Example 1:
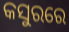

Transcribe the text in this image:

କସୁରରେ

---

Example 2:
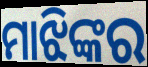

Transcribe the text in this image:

ମାଝିଙ୍କର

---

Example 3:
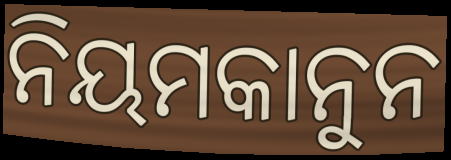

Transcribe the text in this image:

ନିୟମକାନୁନ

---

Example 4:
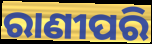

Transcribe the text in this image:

ରାଣୀପରି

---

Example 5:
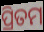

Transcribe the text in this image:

ପ୍ରିତମ